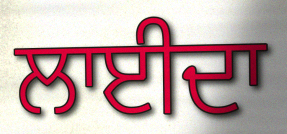
ਲਾਈਦਾ